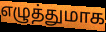
எழுத்துமாக